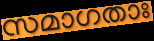
സമാഗതാഃ